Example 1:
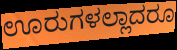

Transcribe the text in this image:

ಊರುಗಳಲ್ಲಾದರೂ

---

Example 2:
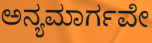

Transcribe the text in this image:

ಅನ್ಯಮಾರ್ಗವೇ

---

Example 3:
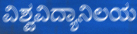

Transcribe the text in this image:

ವಿಶ್ವವಿದ್ಯಾನಿಲಯ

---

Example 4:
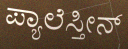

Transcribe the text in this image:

ಪ್ಯಾಲೆಸ್ತೀನ್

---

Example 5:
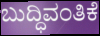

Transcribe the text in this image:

ಬುದ್ಧಿವಂತಿಕೆ